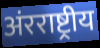
अंरराष्ट्रीय